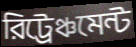
রিট্রেঞ্চমেন্ট